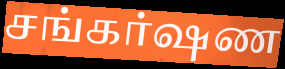
சங்கர்ஷண